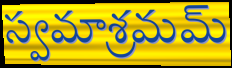
స్వమాశ్రమమ్